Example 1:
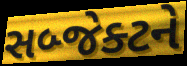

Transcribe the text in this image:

સબ્જેક્ટને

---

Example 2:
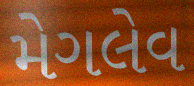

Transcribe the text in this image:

મેગલેવ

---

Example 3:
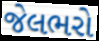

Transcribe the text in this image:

જેલભરો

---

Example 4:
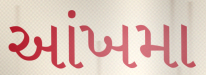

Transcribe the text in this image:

આંખમા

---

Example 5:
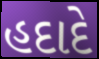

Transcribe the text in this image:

હદાદે